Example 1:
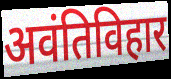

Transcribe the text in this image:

अवंतिविहार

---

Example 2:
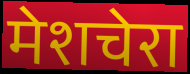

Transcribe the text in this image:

मेशचेरा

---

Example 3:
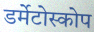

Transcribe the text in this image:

डर्मेटोस्कोप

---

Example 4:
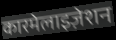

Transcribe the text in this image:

कारमेलाइज़ेशन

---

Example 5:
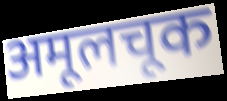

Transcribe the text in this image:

अमूलचूक